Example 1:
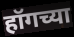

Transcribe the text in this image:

हॉगच्या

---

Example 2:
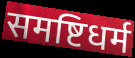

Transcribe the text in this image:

समष्टिधर्म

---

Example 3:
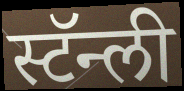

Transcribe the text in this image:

स्टॅन्ली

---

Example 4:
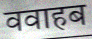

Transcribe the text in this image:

ववाहब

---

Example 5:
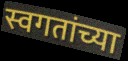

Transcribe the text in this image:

स्वगतांच्या